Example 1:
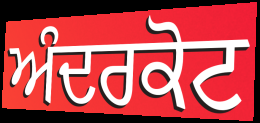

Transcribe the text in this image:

ਅੰਦਰਕੋਟ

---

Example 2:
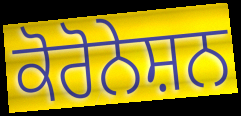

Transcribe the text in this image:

ਕੋਰੋਨੇਸ਼ਨ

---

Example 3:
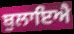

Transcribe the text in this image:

ਬੁਲਾਇਐ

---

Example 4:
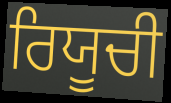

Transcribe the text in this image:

ਰਿਯੂਚੀ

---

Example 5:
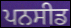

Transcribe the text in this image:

ਪਨਸੀਡ